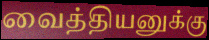
வைத்தியனுக்கு